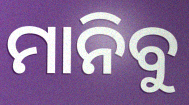
ମାନିବୁ